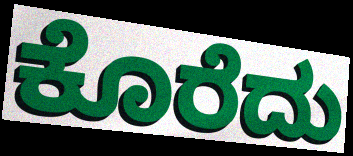
ಕೊರೆದು